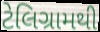
ટેલિગ્રામથી